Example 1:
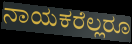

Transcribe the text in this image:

ನಾಯಕರೆಲ್ಲರೂ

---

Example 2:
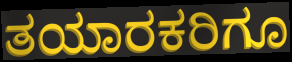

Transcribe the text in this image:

ತಯಾರಕರಿಗೂ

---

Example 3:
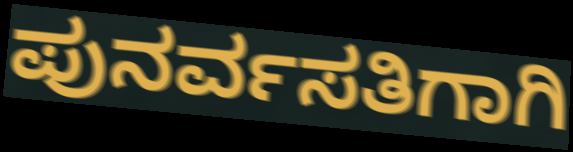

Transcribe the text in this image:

ಪುನರ್ವಸತಿಗಾಗಿ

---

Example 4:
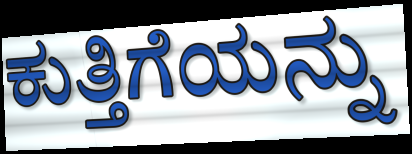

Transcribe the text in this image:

ಕುತ್ತಿಗೆಯನ್ನು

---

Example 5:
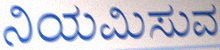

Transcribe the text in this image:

ನಿಯಮಿಸುವ